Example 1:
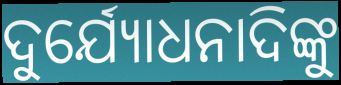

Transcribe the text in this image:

ଦୁର୍ଯ୍ୟୋଧନାଦିଙ୍କୁ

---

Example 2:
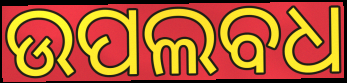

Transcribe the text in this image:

ଉପଲବଧ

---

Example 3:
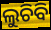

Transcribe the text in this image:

ଲୁଚିବି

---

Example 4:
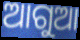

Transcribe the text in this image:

ଆଗୁଆ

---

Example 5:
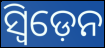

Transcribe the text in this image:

ସ୍ବିଡ଼େନ